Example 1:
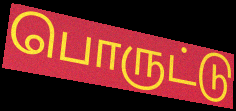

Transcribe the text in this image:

பொருட்டு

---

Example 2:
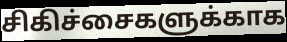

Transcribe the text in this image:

சிகிச்சைகளுக்காக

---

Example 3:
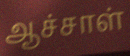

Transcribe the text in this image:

ஆச்சாள்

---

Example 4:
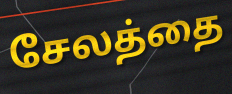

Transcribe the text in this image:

சேலத்தை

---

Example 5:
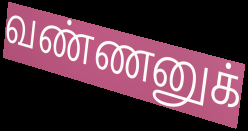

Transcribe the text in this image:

வண்ணனுக்